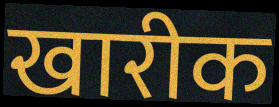
खारीक